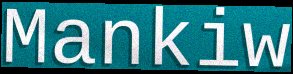
Mankiw